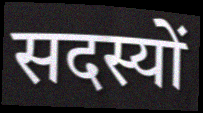
सदस्यों